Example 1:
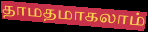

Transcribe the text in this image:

தாமதமாகலாம்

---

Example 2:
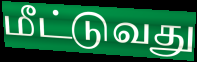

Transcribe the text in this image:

மீட்டுவது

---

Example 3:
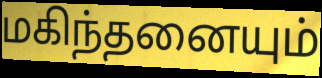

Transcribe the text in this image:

மகிந்தனையும்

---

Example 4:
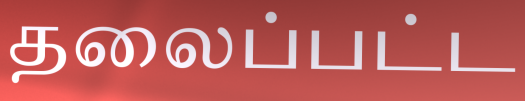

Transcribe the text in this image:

தலைப்பட்ட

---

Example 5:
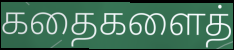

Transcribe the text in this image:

கதைகளைத்